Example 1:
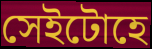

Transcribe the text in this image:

সেইটোহে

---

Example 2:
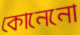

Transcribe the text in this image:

কোনেনো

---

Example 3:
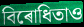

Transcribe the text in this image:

বিৰোধিতাও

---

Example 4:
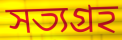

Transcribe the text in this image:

সত্যগ্ৰহ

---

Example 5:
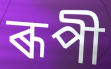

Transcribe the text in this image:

ৰূপী